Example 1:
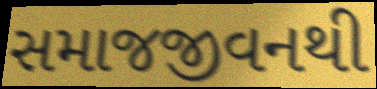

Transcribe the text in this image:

સમાજજીવનથી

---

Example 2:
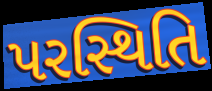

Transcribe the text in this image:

પરસ્થિતિ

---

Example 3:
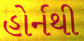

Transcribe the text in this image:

હોર્નથી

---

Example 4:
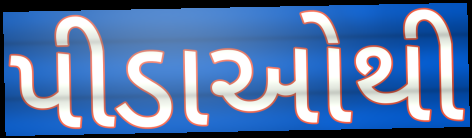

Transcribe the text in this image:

પીડાઓથી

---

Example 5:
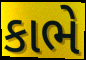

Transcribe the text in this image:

કાભે